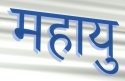
महायु